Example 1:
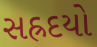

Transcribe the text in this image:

સહ્રદયો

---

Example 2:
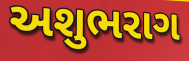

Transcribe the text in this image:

અશુભરાગ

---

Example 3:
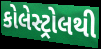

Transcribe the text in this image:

કોલેસ્ટ્રોલથી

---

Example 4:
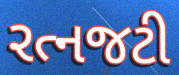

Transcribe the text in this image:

રત્નજટી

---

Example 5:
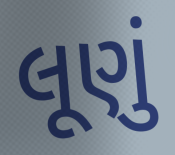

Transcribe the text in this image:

લૂણું